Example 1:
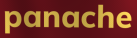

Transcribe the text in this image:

panache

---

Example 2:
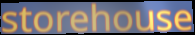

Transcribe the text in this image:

storehouse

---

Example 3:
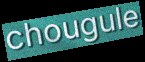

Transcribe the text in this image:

chougule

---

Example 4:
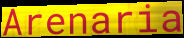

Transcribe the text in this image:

Arenaria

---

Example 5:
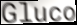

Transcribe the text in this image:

Gluco